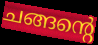
ചങ്ങന്റെ